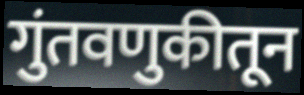
गुंतवणुकीतून